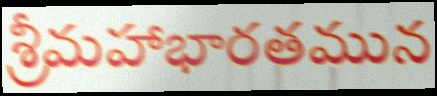
శ్రీమహాభారతమున